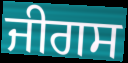
ਜੀਗਸ